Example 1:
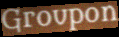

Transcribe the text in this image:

Groupon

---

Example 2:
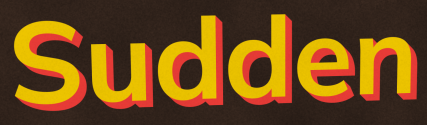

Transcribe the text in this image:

Sudden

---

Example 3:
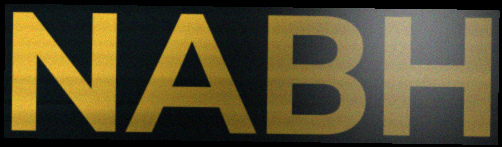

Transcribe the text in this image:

NABH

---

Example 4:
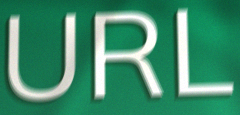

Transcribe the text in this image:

URL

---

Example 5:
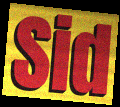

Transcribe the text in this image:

Sid